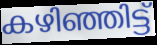
കഴിഞ്ഞിട്ട്